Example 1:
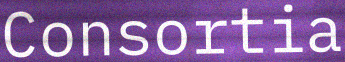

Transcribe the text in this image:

Consortia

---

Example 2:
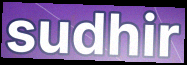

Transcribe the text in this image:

sudhir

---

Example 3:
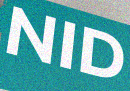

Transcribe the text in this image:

NID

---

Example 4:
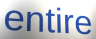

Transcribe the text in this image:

entire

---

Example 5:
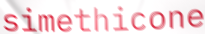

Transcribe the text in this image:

simethicone